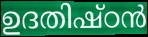
ഉദതിഷ്ഠൻ